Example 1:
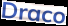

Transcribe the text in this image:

Draco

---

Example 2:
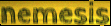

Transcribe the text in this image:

nemesis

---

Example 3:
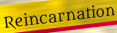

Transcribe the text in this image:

Reincarnation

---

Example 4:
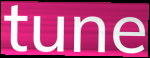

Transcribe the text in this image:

tune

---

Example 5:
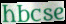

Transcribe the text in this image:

hbcse